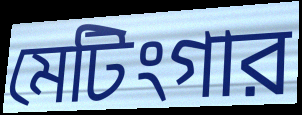
মেটিংগার